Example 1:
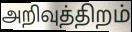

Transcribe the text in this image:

அறிவுத்திறம்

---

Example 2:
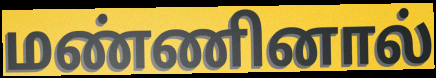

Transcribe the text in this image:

மண்ணினால்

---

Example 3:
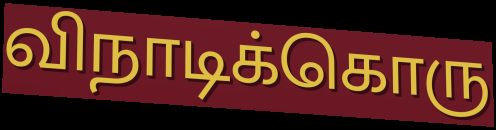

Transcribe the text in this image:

விநாடிக்கொரு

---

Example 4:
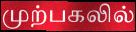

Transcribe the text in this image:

முற்பகலில்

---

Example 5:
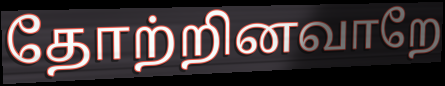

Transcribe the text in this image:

தோற்றினவாறே